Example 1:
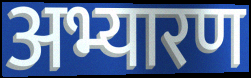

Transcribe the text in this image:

अभ्यारण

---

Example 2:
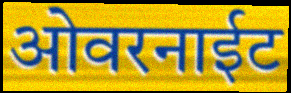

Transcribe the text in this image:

ओवरनाईट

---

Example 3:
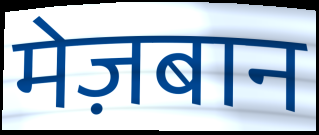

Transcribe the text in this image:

मेज़बान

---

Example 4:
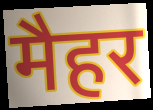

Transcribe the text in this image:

मैहर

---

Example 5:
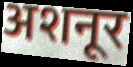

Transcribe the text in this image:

अशनूर